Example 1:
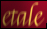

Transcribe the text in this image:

etale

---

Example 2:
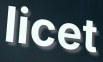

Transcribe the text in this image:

licet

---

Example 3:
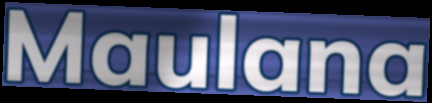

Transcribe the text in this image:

Maulana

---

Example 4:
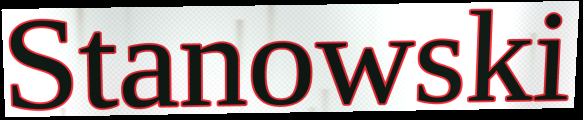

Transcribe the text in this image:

Stanowski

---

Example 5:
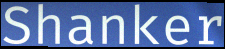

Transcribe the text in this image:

Shanker